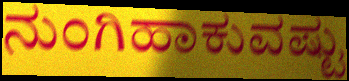
ನುಂಗಿಹಾಕುವಷ್ಟು